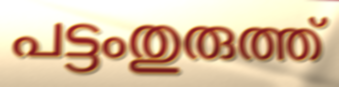
പട്ടംതുരുത്ത്